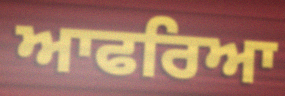
ਆਫਰਿਆ